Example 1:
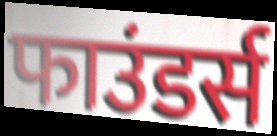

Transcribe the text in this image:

फाउंडर्स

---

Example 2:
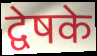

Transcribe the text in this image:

द्वेषके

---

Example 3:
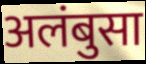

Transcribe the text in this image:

अलंबुसा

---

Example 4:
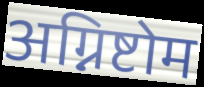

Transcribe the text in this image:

अग्निष्टोम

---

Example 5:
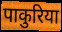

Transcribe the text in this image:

पाकुरिया